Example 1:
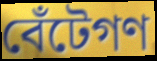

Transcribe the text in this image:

বেঁটেগণ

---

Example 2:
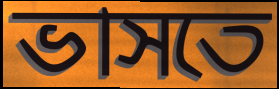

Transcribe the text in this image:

ভাসতে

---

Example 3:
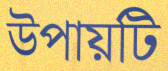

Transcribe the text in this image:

উপায়টি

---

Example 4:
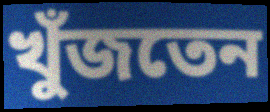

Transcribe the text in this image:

খুঁজতেন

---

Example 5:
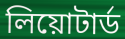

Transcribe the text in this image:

লিয়োটার্ড